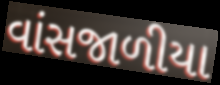
વાંસજાળીયા